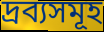
দ্ৰব্যসমূহ